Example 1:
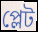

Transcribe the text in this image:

প্লেট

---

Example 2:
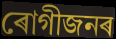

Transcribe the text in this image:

ৰোগীজনৰ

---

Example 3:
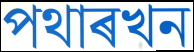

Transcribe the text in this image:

পথাৰখন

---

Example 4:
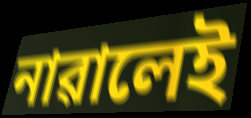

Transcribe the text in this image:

নাৱালেই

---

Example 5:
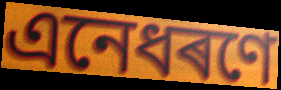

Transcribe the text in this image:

এনেধৰণে